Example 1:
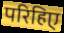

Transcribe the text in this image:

परिहिए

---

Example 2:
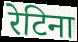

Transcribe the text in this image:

रेटिना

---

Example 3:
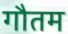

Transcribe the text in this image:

गौतम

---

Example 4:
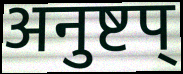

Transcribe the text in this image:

अनुष्टप्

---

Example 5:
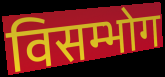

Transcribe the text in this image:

विसम्भोग